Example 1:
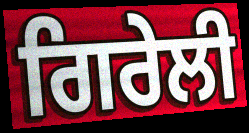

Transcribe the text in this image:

ਗਿਰੇਲੀ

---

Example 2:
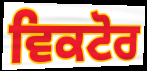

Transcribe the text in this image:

ਵਿਕਟੋਰ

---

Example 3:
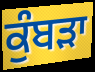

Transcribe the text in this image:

ਕੁੰਬੜਾ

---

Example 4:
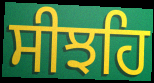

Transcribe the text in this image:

ਸੀਝਹਿ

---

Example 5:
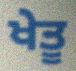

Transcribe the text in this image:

ਖੇਤੂ